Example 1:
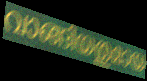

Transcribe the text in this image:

വാങ്ങിയതുമായ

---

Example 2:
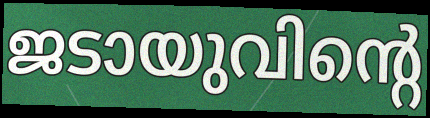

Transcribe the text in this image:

ജടായുവിന്റെ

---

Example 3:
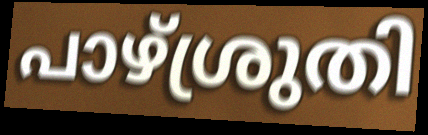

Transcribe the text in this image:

പാഴ്ശ്രുതി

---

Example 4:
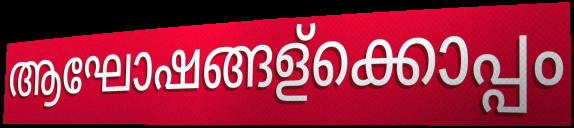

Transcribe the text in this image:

ആഘോഷങ്ങള്ക്കൊപ്പം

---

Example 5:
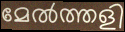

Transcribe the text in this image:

മേൽത്തളി